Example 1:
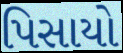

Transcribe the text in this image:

પિસાયો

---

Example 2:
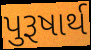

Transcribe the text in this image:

પુરૂષાર્થ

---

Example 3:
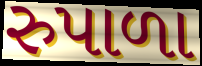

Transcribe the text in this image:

રુપાળા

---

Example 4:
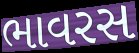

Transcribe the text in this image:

ભાવરસ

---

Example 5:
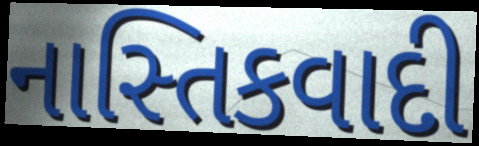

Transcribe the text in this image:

નાસ્તિકવાદી